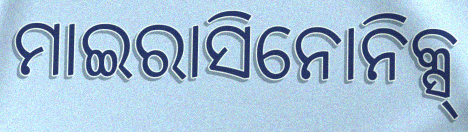
ମାଇରାସିନୋନିକ୍ସ୍